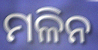
ମଳିନ